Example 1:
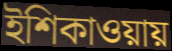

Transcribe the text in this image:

ইশিকাওয়ায়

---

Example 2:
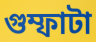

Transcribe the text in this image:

গুম্ফাটা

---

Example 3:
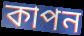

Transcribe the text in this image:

কাপন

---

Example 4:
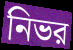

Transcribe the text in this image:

নিভর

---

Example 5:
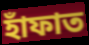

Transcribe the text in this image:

হাঁফাত